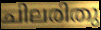
ചിലരിതു